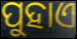
ପୁହାଏ